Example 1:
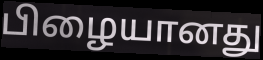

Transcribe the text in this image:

பிழையானது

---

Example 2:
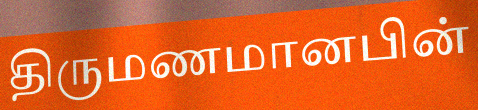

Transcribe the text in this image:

திருமணமானபின்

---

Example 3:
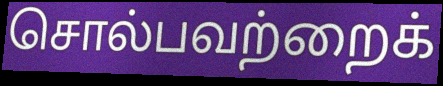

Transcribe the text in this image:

சொல்பவற்றைக்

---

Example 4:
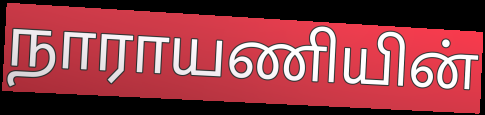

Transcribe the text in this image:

நாராயணியின்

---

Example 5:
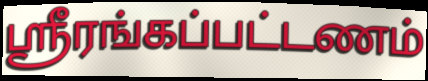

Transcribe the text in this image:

ஸ்ரீரங்கப்பட்டணம்